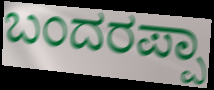
ಬಂದರಪ್ಪಾ